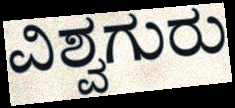
ವಿಶ್ವಗುರು